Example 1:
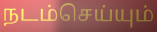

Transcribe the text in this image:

நடம்செய்யும்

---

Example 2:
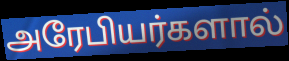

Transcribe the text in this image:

அரேபியர்களால்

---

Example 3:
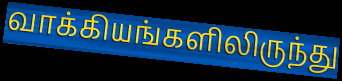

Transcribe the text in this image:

வாக்கியங்களிலிருந்து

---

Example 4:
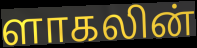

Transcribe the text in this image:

ளாகலின்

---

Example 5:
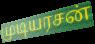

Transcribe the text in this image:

முடியரசன்